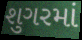
શુગરમાં